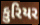
કુરિયર